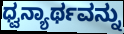
ಧ್ವನ್ಯಾರ್ಥವನ್ನು